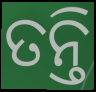
ତନ୍ତି